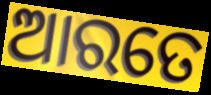
ଆରତେ